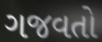
ગજવતો